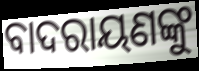
ବାଦରାୟଣଙ୍କୁ